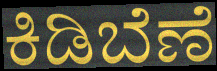
ಕಿಡಿಬೆಣೆ